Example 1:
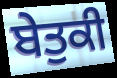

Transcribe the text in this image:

ਬੇਤੁਕੀ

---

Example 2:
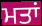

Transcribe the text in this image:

ਮਤਾਂ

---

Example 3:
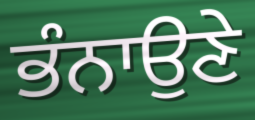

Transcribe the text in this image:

ਭੰਨਾਉਣੇ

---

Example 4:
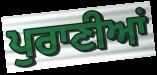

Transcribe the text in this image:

ਪੁਰਾਣੀਆਂ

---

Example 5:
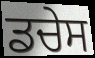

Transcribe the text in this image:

ਡਚੇਸ